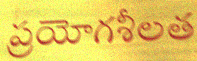
ప్రయోగశీలత